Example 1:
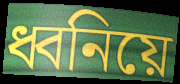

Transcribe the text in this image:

ধ্বনিয়ে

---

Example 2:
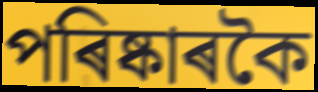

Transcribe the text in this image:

পৰিষ্কাৰকৈ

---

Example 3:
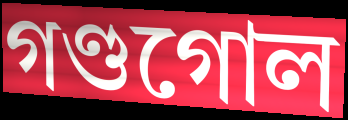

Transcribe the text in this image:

গণ্ডগোল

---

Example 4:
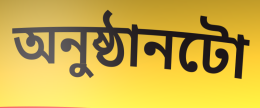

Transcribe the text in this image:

অনুষ্ঠানটো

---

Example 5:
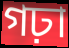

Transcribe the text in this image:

গঢ়া